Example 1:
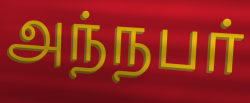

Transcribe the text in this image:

அந்நபர்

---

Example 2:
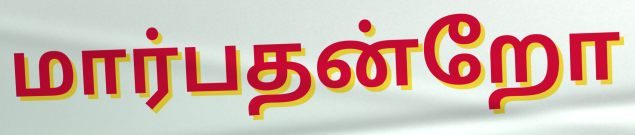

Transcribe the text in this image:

மார்பதன்றோ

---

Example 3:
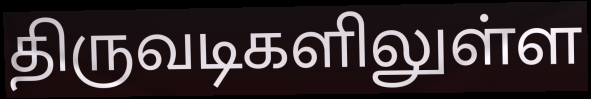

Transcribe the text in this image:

திருவடிகளிலுள்ள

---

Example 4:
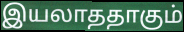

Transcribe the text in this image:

இயலாததாகும்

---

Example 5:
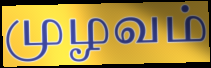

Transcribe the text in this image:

முழவம்